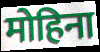
मोहिना